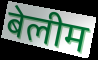
बेलीम